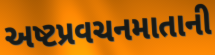
અષ્ટપ્રવચનમાતાની